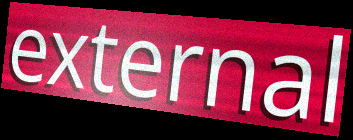
external